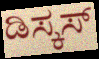
ಡಿಸ್ಕಸ್